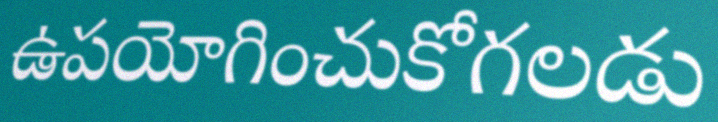
ఉపయోగించుకోగలడు